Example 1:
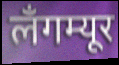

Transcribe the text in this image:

लँगम्यूर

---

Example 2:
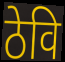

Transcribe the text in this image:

ठेवि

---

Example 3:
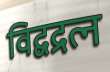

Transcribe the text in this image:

विद्वद्रत्न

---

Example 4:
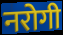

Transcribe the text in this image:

नरोगी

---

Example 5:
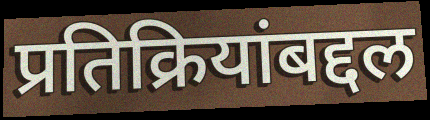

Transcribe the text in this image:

प्रतिक्रियांबद्दल